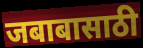
जबाबासाठी